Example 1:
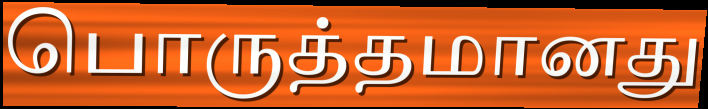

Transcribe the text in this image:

பொருத்தமானது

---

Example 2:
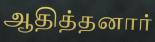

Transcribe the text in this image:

ஆதித்தனார்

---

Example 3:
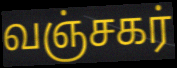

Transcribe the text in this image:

வஞ்சகர்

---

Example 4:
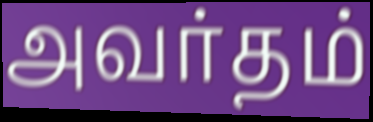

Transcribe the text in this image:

அவர்தம்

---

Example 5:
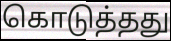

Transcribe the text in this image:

கொடுத்தது